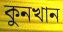
কুনখান